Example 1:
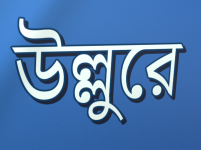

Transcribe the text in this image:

উল্লুরে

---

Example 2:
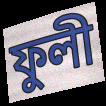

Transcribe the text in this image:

ফুলী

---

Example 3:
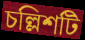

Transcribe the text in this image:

চল্লিশটি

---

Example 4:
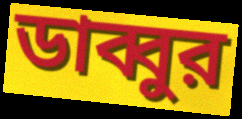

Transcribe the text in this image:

ডাব্বুর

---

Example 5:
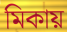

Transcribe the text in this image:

মিকায়